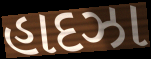
હાદઝા